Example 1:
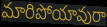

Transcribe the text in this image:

మారిపోయావురా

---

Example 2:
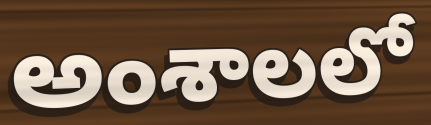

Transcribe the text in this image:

అంశాలలో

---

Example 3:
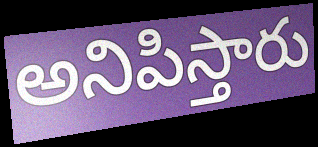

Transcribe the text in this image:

అనిపిస్తారు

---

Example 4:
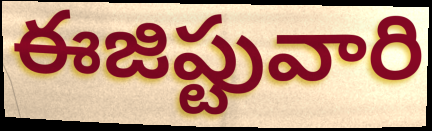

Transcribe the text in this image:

ఈజిప్టువారి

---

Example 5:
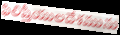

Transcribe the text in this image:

ఫిలిష్తీయులదేశమును